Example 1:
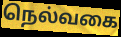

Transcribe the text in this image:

நெல்வகை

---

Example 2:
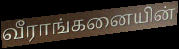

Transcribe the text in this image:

வீராங்கனையின்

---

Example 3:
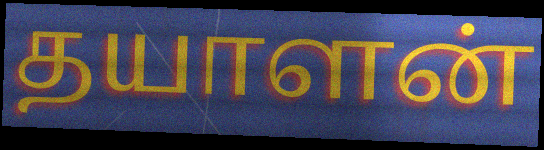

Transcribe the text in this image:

தயாளன்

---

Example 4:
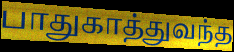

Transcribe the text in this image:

பாதுகாத்துவந்த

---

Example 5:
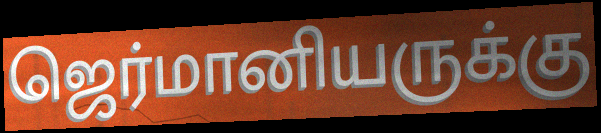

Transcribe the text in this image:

ஜெர்மானியருக்கு